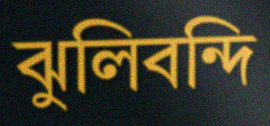
ঝুলিবন্দি